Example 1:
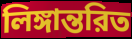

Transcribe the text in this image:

লিঙ্গান্তরিত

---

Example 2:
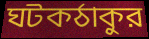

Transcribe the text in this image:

ঘটকঠাকুর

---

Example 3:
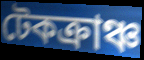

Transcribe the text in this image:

টেকক্রাঞ্চ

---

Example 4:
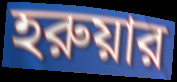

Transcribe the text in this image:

হরুয়ার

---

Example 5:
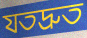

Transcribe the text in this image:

যতদ্রুত